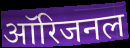
ऑरिजनल